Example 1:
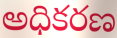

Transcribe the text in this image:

అధికరణ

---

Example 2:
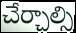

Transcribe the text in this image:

చేర్చాల్సి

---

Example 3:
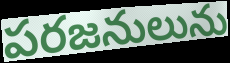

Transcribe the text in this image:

పరజనులును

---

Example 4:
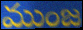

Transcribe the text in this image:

ముంజ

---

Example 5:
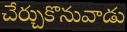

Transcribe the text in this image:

చేర్చుకొనువాడు